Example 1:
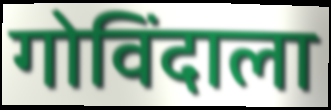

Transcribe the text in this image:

गोविंदाला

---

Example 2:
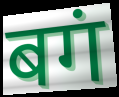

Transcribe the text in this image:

बगं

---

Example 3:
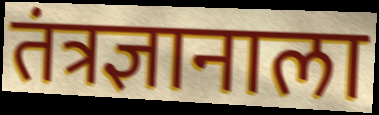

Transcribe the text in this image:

तंत्रज्ञानाला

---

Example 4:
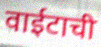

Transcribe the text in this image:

वाईटाची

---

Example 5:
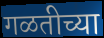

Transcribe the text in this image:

गळतीच्या